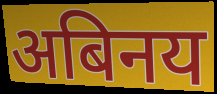
अबिनय